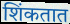
शिंकतात